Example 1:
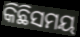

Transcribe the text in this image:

କିଛିସମୟ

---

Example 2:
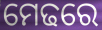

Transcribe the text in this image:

ମେଢରେ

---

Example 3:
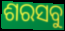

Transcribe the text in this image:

ଶରସବୁ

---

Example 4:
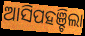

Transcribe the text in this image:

ଆସିପହଞ୍ଚିଲା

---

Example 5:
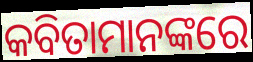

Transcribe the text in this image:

କବିତାମାନଙ୍କରେ